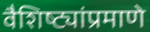
वैशिष्ट्यांप्रमाणे